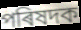
পৰিষদক